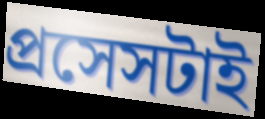
প্রসেসটাই